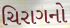
ચિરાગનો